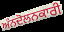
ਅੰਨਦੋਲਨਕਾਰੀ